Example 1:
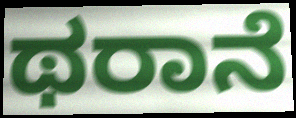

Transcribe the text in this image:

ಥರಾನೆ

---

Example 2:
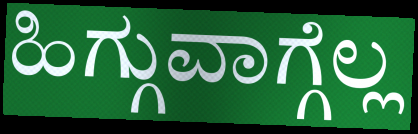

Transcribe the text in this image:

ಹಿಗ್ಗುವಾಗ್ಗೆಲ್ಲ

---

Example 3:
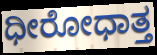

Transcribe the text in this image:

ಧೀರೋಧಾತ್ತ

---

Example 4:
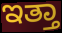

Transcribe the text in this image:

ಇತ್ತಾ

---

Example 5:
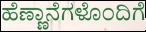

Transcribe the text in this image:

ಹೆಣ್ಣಾನೆಗಳೊಂದಿಗೆ